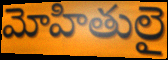
మోహితులై